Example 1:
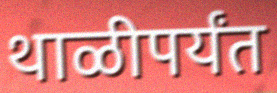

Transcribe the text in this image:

थाळीपर्यंत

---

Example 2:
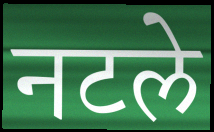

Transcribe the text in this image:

नटले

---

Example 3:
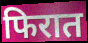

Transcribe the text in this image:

फिरात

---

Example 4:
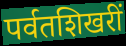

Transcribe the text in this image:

पर्वतशिखरीं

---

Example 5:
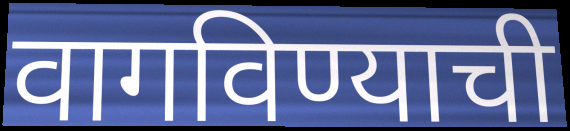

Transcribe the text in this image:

वागविण्याची